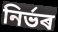
নিৰ্ভৰ